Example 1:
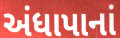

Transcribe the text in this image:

અંધાપાનાં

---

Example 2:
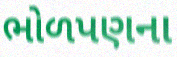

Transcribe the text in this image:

ભોળપણના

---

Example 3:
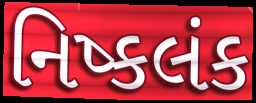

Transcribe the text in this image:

નિષ્કલંક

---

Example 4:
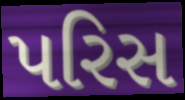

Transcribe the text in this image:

પરિસ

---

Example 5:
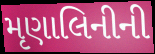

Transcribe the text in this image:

મૃણાલિનીની